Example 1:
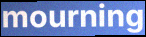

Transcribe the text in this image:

mourning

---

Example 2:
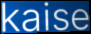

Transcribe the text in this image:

kaise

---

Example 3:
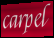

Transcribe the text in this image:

carpel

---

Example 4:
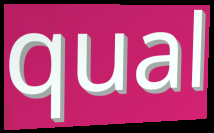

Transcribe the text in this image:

qual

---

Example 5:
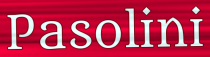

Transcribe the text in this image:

Pasolini